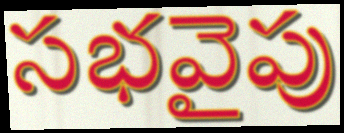
సభవైపు